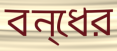
বন্‌ধের